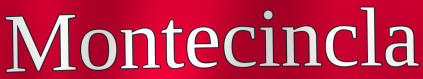
Montecincla